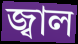
জ্বাল